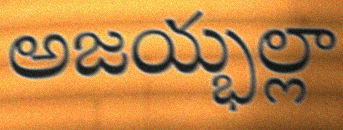
అజయ్భల్లా